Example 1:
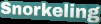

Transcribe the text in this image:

Snorkeling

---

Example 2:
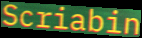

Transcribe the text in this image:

Scriabin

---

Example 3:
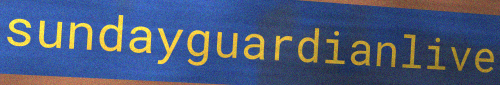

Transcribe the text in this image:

sundayguardianlive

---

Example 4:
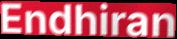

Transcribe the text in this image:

Endhiran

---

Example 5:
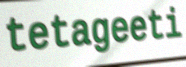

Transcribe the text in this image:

tetageeti